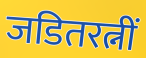
जडितरत्नीं